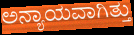
ಅನ್ಯಾಯವಾಗಿತ್ತು